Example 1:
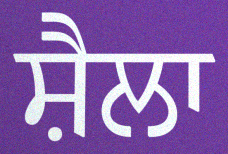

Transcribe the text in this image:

ਸ਼ੈਲਾ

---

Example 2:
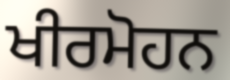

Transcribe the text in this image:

ਖੀਰਮੋਹਨ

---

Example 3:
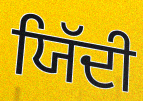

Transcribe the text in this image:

ਯਿੱਦੀ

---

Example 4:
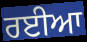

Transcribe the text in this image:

ਰਈਆ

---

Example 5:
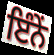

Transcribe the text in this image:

ਇੰਨੇਂ